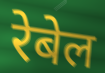
रेबेल